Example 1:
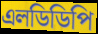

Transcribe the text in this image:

এলডিডিপি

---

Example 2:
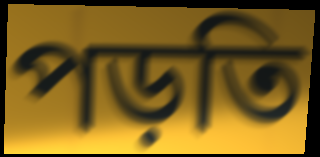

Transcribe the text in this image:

পড়তি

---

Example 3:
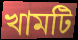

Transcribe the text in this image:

খামটি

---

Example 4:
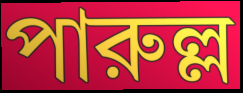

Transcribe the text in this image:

পারুল্ল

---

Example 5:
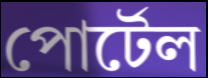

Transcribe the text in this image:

পোর্টেল